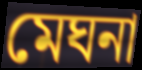
মেঘনা